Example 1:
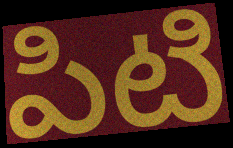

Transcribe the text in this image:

పిటి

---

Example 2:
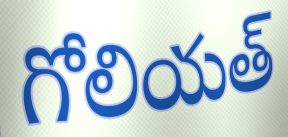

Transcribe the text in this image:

గోలియత్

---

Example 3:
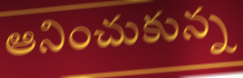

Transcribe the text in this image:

ఆనించుకున్న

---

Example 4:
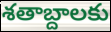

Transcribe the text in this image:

శతాబ్దాలకు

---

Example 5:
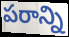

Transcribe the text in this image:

పరాన్ని